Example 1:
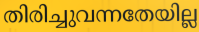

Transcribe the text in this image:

തിരിച്ചുവന്നതേയില്ല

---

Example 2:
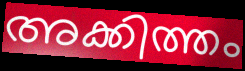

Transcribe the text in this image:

അക്കിത്തം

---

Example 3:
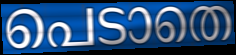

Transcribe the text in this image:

പെടാതെ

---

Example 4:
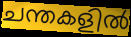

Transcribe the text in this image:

ചന്തകളിൽ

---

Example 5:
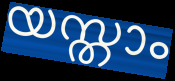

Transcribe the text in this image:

യസ്താം